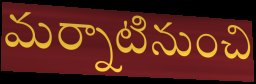
మర్నాటినుంచి